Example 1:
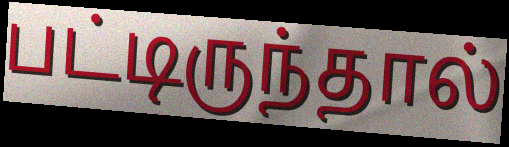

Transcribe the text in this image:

பட்டிருந்தால்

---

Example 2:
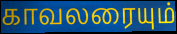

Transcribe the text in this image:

காவலரையும்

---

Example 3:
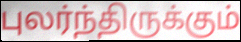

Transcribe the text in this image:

புலர்ந்திருக்கும்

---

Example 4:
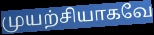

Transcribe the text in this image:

முயற்சியாகவே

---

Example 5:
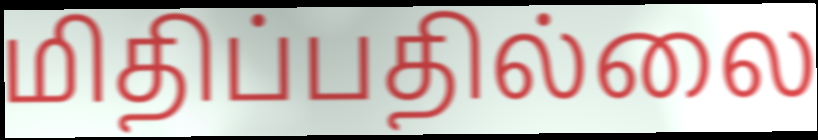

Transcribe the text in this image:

மிதிப்பதில்லை